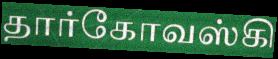
தார்கோவஸ்கி